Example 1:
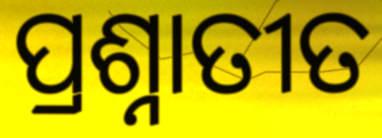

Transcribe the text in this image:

ପ୍ରଶ୍ନାତୀତ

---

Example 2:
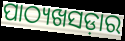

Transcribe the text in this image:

ପାଠ୍ୟଖସଡ଼ାର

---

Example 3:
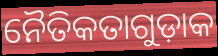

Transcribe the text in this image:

ନୈତିକତାଗୁଡ଼ାକ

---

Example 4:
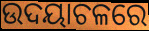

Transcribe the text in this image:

ଉଦୟାଚଳରେ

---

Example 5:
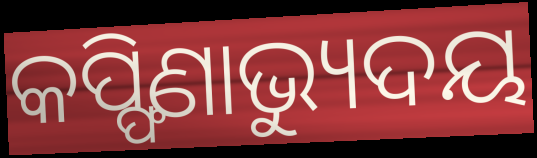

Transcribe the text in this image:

କପ୍ଫିଣାଭ୍ୟୁଦୟ